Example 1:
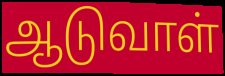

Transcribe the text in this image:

ஆடுவாள்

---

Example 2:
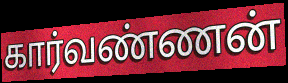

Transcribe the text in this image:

கார்வண்ணன்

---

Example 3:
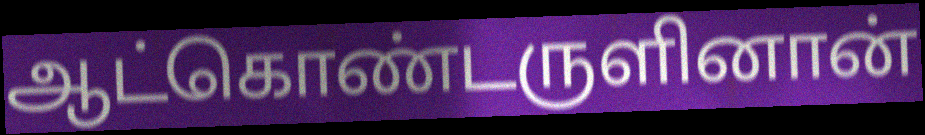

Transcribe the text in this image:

ஆட்கொண்டருளினான்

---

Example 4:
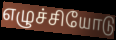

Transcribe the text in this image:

எழுச்சியோடு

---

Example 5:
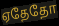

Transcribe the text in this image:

ஏதேதோ